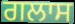
ਗਲਾਸ